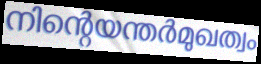
നിന്റെയന്തർമുഖത്വം